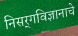
निसर्गविज्ञानाचे